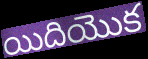
యిదియొక